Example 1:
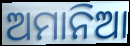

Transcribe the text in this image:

ଅମାନିଆ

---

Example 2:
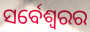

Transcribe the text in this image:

ସର୍ବେଶ୍ୱରର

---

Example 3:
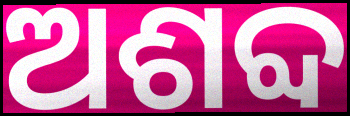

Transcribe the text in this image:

ଅଶବ୍ଦ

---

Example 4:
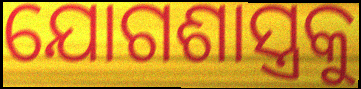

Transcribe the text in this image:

ଯୋଗଶାସ୍ତ୍ରକୁ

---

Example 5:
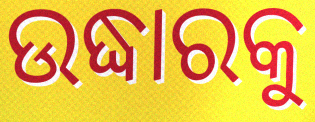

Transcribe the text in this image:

ଉଦ୍ଧାରକୁ